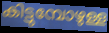
കിട്ടുമ്പോഴുള്ള